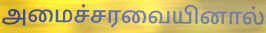
அமைச்சரவையினால்